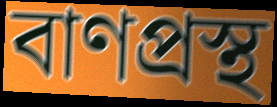
বাণপ্রস্থ